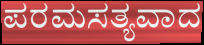
ಪರಮಸತ್ಯವಾದ